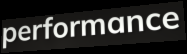
performance